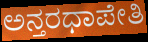
ಅನ್ತರಧಾಪೇತಿ